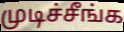
முடிச்சீங்க